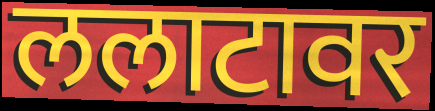
ललाटावर